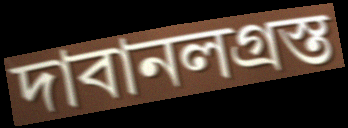
দাবানলগ্রস্ত